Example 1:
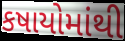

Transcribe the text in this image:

કષાયોમાંથી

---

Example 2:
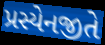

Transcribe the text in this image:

પ્રસ્યેનજીતે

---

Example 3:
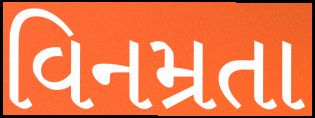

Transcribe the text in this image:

વિનમ્રતા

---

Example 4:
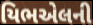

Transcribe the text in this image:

યિભએલની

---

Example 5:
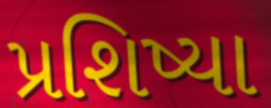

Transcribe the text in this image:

પ્રશિષ્યા